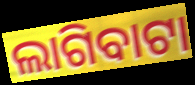
ଲାଗିବାଟା